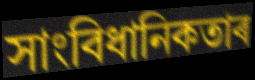
সাংবিধানিকতাৰ